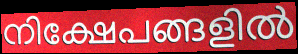
നിക്ഷേപങ്ങളിൽ